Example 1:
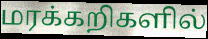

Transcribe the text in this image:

மரக்கறிகளில்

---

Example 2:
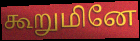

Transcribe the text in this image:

கூறுமினே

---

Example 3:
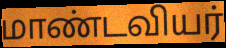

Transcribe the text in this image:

மாண்டவியர்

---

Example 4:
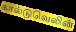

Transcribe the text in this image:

கால்டுவெலின்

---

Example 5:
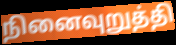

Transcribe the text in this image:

நினைவுறுத்தி